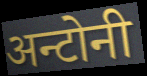
अन्टोनी